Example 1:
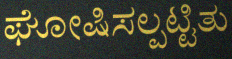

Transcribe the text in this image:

ಘೋಷಿಸಲ್ಪಟ್ಟಿತು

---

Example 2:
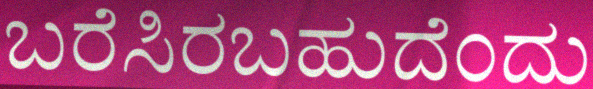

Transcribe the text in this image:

ಬರೆಸಿರಬಹುದೆಂದು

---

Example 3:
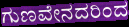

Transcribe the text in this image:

ಗುಣವೇನದರಿಂದ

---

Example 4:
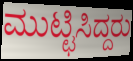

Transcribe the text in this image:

ಮುಟ್ಟಿಸಿದ್ದರು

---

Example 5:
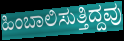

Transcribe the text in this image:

ಹಿಂಬಾಲಿಸುತ್ತಿದ್ದವು